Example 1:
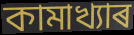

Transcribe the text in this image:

কামাখ্যাৰ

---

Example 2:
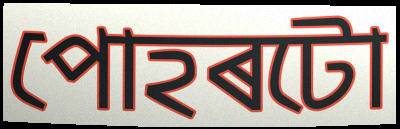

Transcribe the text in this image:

পোহৰটো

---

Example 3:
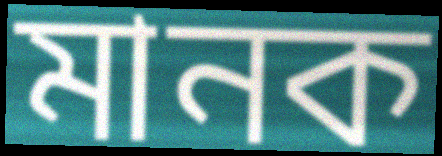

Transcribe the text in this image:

মানক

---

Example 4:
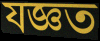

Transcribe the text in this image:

যজ্ঞত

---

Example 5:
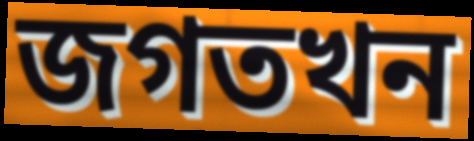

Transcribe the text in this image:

জগতখন